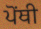
ਪੋਂਥੀ